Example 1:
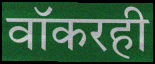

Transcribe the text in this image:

वॉकरही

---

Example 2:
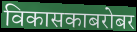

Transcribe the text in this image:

विकासकाबरोबर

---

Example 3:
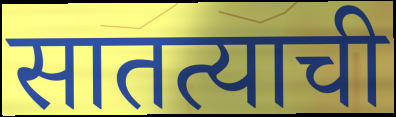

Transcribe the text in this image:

सातत्याची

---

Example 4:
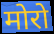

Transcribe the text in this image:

मोरो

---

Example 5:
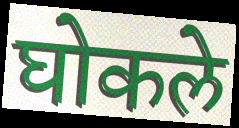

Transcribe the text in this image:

घोकले